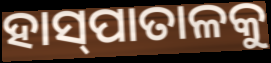
ହାସ୍‍ପାତାଳକୁ